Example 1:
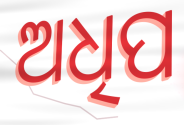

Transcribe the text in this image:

ଅଧିପ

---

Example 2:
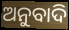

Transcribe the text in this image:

ଅନୁବାଦି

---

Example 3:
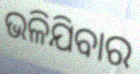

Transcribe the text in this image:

ଭଳିଯିବାର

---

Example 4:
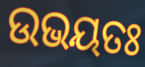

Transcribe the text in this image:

ଉଭୟତଃ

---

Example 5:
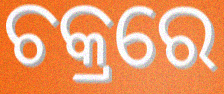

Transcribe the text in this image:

ଚକ୍ରରେ